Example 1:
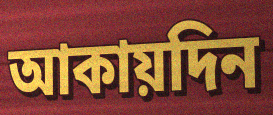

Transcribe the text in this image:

আকায়দিন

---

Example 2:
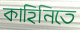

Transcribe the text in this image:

কাহিনিতে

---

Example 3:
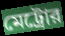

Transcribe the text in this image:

মেট্রোর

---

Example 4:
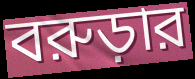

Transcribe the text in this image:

বরুড়ার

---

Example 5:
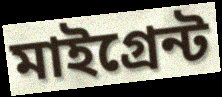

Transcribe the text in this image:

মাইগ্রেন্ট